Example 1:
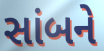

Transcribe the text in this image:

સાંબને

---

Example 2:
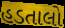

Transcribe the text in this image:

હડતાલો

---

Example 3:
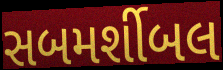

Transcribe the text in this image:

સબમર્શીબલ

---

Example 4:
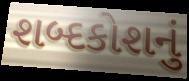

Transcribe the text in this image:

શબ્દકોશનું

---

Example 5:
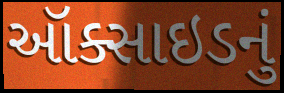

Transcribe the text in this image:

ઑક્સાઇડનું